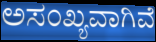
ಅಸಂಖ್ಯವಾಗಿವೆ